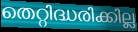
തെറ്റിദ്ധരിക്കില്ല